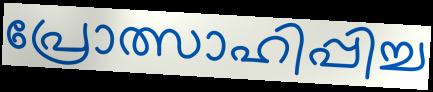
പ്രോത്സാഹിപ്പിച്ച